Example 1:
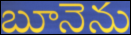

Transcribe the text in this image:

బూనెను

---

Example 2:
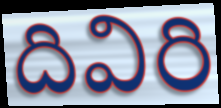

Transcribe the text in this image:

దివిరి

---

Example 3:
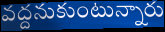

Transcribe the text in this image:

వద్దనుకుంటున్నారు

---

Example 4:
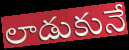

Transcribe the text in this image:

లాడుకునే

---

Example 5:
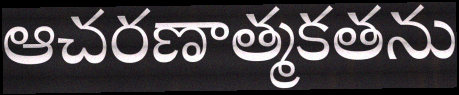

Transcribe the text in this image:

ఆచరణాత్మకతను